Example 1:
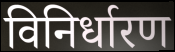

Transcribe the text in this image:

विनिर्धारण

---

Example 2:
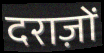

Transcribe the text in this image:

दराज़ों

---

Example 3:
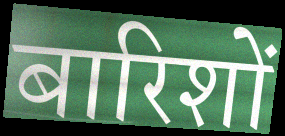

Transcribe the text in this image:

बारिशों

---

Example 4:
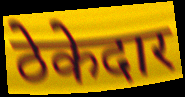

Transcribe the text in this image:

ठेकेदार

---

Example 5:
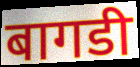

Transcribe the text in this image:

बागडी